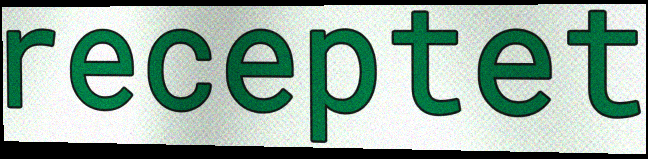
receptet